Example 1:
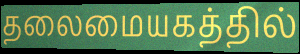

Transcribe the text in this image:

தலைமையகத்தில்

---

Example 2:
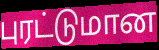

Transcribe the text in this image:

புரட்டுமான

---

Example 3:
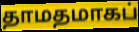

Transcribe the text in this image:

தாமதமாகப்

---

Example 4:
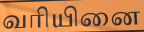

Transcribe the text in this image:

வரியினை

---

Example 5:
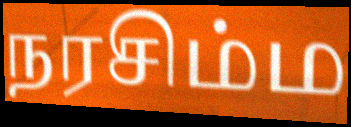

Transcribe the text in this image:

நரசிம்ம